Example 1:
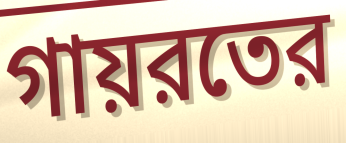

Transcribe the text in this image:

গায়রতের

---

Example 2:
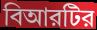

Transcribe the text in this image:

বিআরটির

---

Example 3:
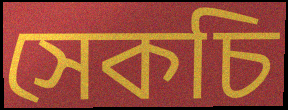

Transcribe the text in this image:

সেকচি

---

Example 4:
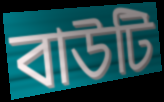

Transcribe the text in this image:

বাউটি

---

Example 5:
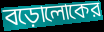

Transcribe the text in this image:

বড়োলোকের